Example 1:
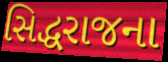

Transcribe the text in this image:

સિદ્ધરાજના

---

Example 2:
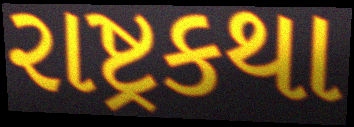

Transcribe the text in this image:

રાષ્ટ્રકથા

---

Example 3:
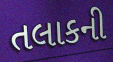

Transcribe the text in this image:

તલાકની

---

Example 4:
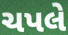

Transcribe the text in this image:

ચપલે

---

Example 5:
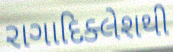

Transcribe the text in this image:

રાગાદિક્લેશથી